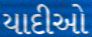
યાદીઓ